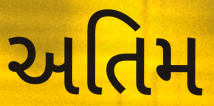
અતિમ